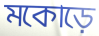
মকোড়ে